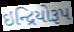
ઇન્દ્રિયોરૂપ